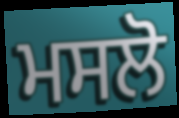
ਮਸਲੋ